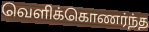
வெளிக்கொணர்ந்த